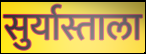
सुर्यास्ताला